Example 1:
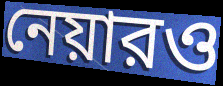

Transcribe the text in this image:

নেয়ারও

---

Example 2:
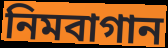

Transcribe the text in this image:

নিমবাগান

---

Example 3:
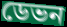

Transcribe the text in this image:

ডেভন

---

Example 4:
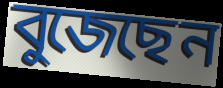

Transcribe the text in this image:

বুজেছেন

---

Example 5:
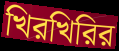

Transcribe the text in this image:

খিরখিরির